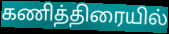
கணித்திரையில்